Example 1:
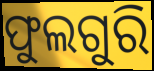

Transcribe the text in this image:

ଫୁଲଗୁରି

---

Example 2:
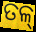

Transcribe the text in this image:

ତଳ୍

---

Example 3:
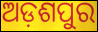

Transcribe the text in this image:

ଅଡ଼ଶପୁର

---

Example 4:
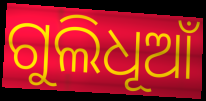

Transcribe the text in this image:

ଗୁଲିଧୂଆଁ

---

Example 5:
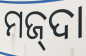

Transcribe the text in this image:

ମଜ୍‌ଦା